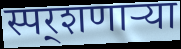
स्पर्शणाऱ्या